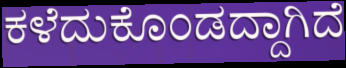
ಕಳೆದುಕೊಂಡದ್ದಾಗಿದೆ